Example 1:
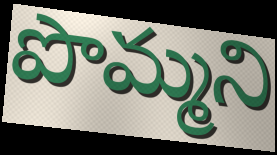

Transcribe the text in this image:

పొమ్మని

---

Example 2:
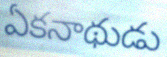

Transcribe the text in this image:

ఏకనాథుడు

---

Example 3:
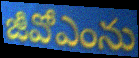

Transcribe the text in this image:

జీవోఎంను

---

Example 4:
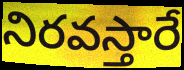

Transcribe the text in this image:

నిరవస్తారే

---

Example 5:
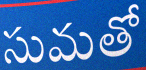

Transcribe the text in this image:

సుమతో